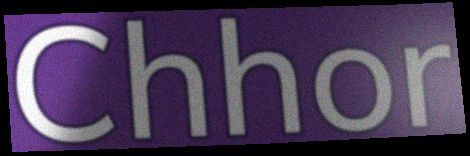
Chhor